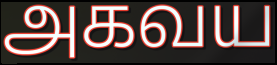
அகவய